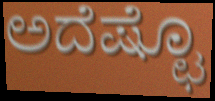
ಅದೆಷ್ಟೊ